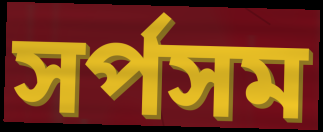
সর্পসম